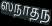
ஸநாதந